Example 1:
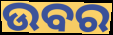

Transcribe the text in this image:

ଉବର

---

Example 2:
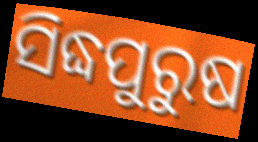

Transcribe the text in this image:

ସିଦ୍ଧପୁରୁଷ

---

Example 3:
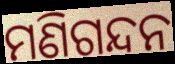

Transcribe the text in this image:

ମଣିଗନ୍ଦନ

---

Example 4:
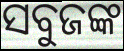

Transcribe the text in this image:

ସବୁଜଙ୍କ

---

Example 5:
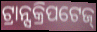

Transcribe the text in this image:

ଟ୍ରାନ୍ସକ୍ରିପଟେଜ୍